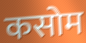
कसोम